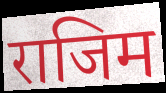
राजिम